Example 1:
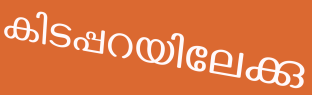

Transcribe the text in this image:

കിടപ്പറയിലേക്കു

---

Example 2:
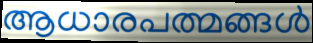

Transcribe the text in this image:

ആധാരപത്മങ്ങൾ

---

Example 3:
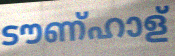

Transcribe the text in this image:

ടൗണ്ഹാള്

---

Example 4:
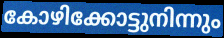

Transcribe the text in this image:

കോഴിക്കോട്ടുനിന്നും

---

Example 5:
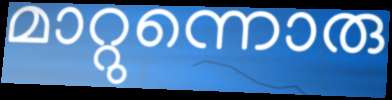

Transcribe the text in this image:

മാറ്റുന്നൊരു